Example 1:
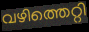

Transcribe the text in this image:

വഴിത്തെറ്റി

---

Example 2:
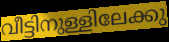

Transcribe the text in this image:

വീട്ടിനുള്ളിലേക്കു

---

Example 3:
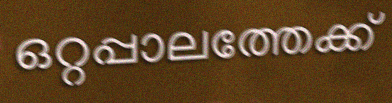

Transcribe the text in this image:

ഒറ്റപ്പാലത്തേക്ക്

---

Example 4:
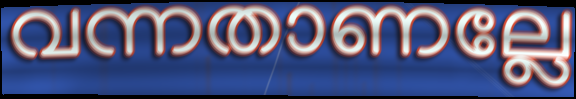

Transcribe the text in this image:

വന്നതാണല്ലേ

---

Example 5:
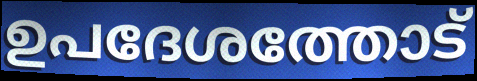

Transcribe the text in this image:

ഉപദേശത്തോട്